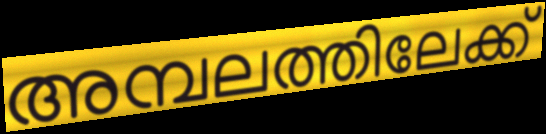
അമ്പലത്തിലേക്ക്